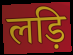
लड़ि